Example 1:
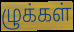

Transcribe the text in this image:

ழுக்கள்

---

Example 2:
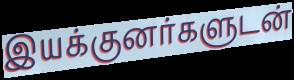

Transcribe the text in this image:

இயக்குனர்களுடன்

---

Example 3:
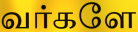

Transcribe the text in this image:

வர்களே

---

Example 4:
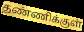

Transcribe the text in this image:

தண்ணிக்குள்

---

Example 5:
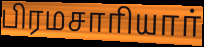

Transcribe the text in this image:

பிரமசாரியார்